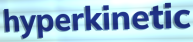
hyperkinetic